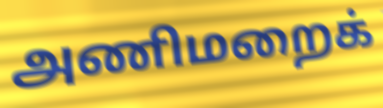
அணிமறைக்